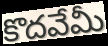
కొదవేమీ